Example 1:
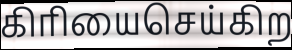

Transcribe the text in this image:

கிரியைசெய்கிற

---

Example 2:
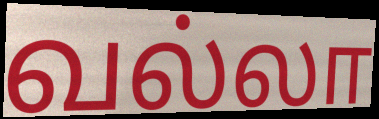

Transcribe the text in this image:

வல்லா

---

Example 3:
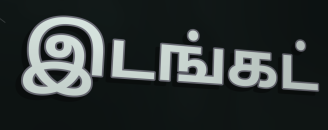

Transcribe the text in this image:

இடங்கட்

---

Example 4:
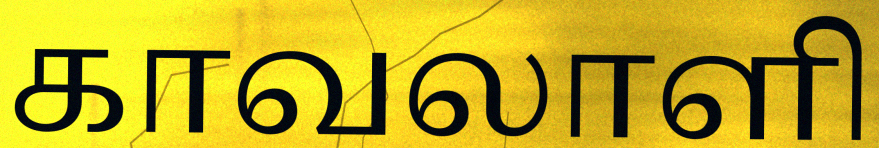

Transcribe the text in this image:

காவலாளி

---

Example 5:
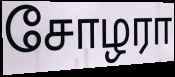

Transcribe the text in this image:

சோழரா